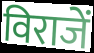
विराजें